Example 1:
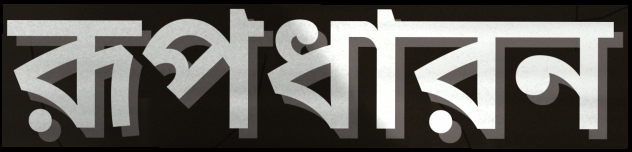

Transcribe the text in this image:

রূপধারন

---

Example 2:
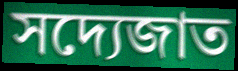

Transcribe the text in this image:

সদ্যেজাত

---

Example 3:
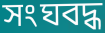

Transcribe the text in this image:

সংঘবদ্ধ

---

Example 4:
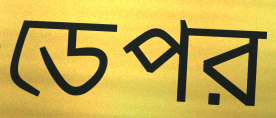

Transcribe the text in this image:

ডেপর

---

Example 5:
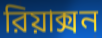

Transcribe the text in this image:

রিয়াক্সন